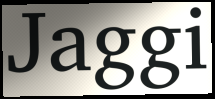
Jaggi